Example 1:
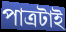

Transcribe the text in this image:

পাত্রটাই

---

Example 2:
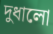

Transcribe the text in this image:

দুধালো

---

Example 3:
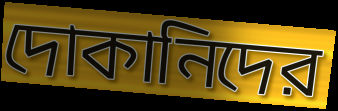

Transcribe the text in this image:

দোকানিদের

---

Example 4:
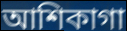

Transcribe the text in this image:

আশিকাগা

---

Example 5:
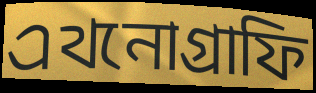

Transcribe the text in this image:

এথনোগ্রাফি